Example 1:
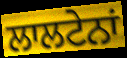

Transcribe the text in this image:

ਲਾਲਟੇਨਾਂ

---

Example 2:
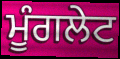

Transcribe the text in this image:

ਮੂੰਗਲੇਟ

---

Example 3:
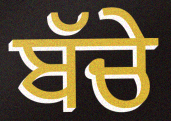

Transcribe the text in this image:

ਬੱਚੇ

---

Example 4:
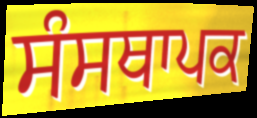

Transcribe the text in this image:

ਸੰਸਥਾਪਕ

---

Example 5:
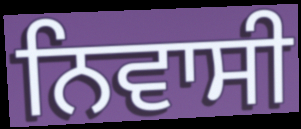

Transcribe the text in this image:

ਨਿਵਾਸੀ